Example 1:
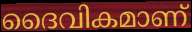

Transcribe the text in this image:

ദൈവികമാണ്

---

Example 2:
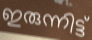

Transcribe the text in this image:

ഇരുന്നിട്ട്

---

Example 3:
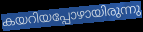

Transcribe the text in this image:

കയറിയപ്പോഴായിരുന്നു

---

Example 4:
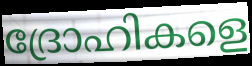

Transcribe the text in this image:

ദ്രോഹികളെ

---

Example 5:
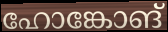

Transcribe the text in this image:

ഹോങ്കോങ്